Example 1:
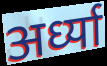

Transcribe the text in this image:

अर्ध्या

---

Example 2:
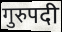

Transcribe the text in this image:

गुरुपदी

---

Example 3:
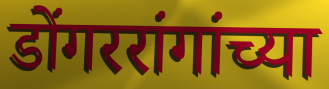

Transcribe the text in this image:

डोंगररांगांच्या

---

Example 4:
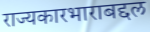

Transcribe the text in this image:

राज्यकारभाराबद्दल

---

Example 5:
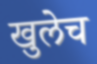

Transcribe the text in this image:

खुलेच